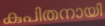
കുപിതനായി